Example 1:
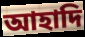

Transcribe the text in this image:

আহাদি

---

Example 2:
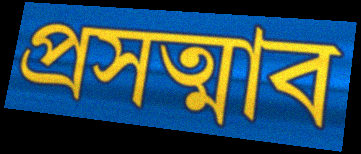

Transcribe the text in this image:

প্রসত্মাব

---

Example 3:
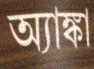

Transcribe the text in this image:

অ্যাঙ্কা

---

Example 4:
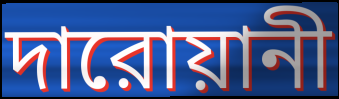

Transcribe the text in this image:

দারোয়ানী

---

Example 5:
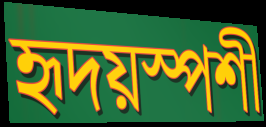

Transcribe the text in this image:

হৃদয়স্পশী